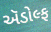
ઍડોલ્ફ